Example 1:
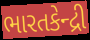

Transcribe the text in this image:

ભારતકેન્દ્રી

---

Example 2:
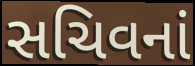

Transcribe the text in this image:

સચિવનાં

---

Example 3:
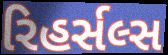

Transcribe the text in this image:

રિહર્સલ્સ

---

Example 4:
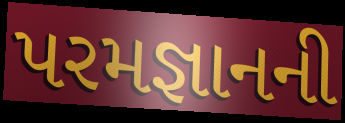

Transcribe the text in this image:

પરમજ્ઞાનની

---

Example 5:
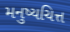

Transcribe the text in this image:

મનુષ્યચિત્ત